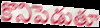
కొనిపెడుతూ